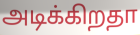
அடிக்கிறதா